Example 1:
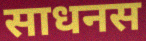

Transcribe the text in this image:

साधनस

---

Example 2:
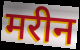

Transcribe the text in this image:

मरीन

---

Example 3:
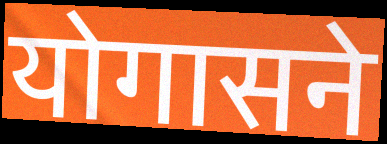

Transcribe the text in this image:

योगासने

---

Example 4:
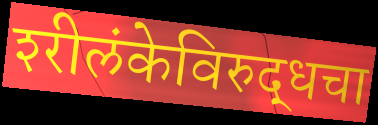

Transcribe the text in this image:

श्रीलंकेविरुद्धचा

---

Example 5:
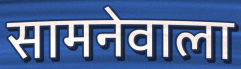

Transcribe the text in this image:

सामनेवाला